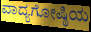
ವಾದ್ಯಗೋಷ್ಠಿಯ